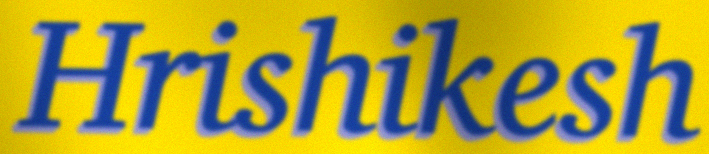
Hrishikesh